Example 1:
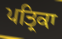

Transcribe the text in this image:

ਪਤ੍ਰਿਕਾ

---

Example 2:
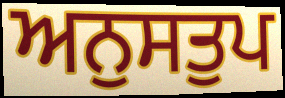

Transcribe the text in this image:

ਅਨੁਸਤੁਪ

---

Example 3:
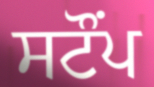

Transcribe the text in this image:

ਸਟੌਂਪ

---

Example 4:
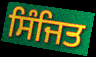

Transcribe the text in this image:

ਸਿੰਜਿਤ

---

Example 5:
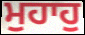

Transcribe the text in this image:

ਮੁਹਾਹੁ